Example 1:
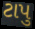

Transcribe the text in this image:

ટાપુ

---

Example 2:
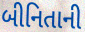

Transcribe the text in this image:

બીનિતાની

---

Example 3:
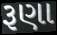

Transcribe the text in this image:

રૂણા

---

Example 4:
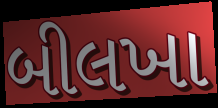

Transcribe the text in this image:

બીલખા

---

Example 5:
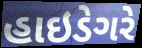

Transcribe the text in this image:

હાઇડેગરે